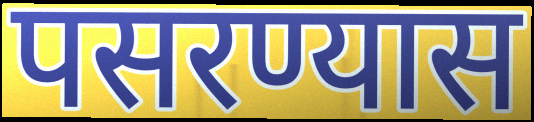
पसरण्यास